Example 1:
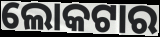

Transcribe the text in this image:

ଲୋକଟାର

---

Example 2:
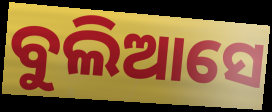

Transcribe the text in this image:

ବୁଲିଆସେ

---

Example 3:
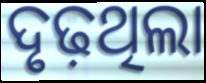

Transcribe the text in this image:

ଦୃଢ଼ଥିଲା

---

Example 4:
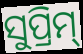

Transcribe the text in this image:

ସୁପ୍ରିମ୍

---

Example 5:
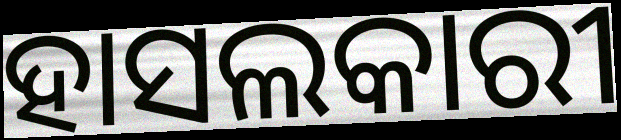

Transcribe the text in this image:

ହାସଲକାରୀ